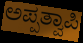
ಅಪ್ಪತ್ವಾಪಿ